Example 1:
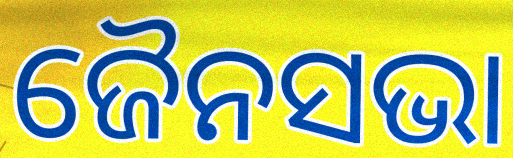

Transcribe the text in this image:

ଜୈନସଭା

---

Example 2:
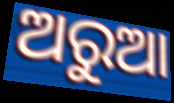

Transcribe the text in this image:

ଅରୁଆ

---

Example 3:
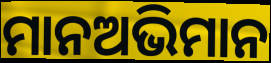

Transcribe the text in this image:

ମାନଅଭିମାନ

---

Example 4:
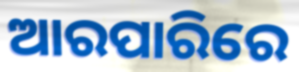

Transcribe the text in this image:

ଆରପାରିରେ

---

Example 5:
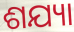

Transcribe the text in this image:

ଶଯ୍ୟା